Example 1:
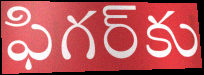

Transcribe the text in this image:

ఫిగర్‌కు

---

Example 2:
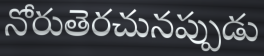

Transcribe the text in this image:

నోరుతెరచునప్పుడు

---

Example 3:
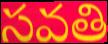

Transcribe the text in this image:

సవతి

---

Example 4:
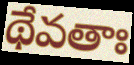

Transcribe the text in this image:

థేవతాః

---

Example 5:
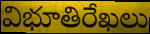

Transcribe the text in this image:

విభూతిరేఖలు